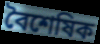
বৈশেষিক